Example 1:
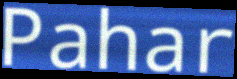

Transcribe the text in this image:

Pahar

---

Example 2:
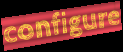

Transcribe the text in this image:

configure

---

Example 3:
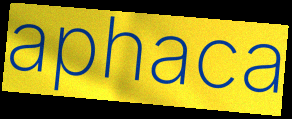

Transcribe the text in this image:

aphaca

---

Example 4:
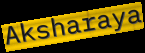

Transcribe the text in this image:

Aksharaya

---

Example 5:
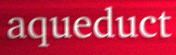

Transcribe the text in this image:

aqueduct